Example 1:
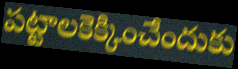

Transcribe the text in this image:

పట్టాలకెక్కించేందుకు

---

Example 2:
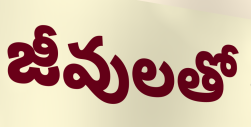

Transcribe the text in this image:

జీవులతో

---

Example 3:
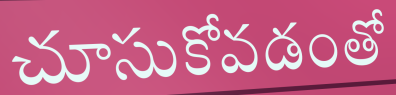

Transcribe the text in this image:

చూసుకోవడంతో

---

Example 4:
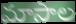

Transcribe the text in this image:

మాసాల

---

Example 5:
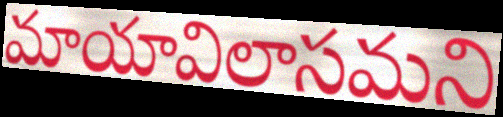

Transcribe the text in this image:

మాయావిలాసమని